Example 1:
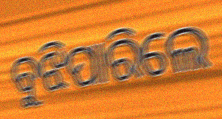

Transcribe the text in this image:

ବୁଝିପାରିଲେ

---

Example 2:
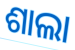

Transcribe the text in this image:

ଶାଲା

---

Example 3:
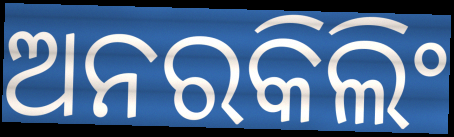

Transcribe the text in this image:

ଅନରକିଲିଂ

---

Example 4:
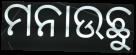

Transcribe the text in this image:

ମନାଉଛୁ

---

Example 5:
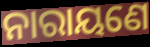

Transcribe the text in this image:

ନାରାୟଣେ